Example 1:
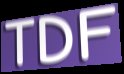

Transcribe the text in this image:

TDF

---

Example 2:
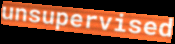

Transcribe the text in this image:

unsupervised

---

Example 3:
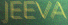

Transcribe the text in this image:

JEEVA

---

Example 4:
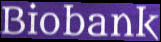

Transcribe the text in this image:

Biobank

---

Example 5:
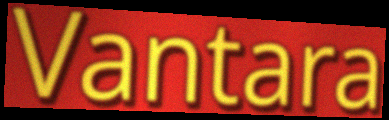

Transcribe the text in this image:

Vantara